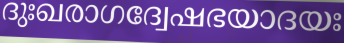
ദുഃഖരാഗദ്വേഷഭയാദയഃ